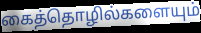
கைத்தொழில்களையும்